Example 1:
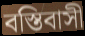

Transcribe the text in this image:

বস্তিবাসী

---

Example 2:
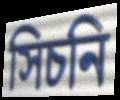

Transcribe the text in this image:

সিচনি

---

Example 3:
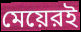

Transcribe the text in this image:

মেয়েরই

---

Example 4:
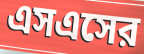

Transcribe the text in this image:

এসএসের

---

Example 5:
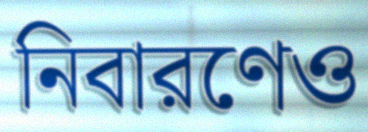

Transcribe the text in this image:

নিবারণেও